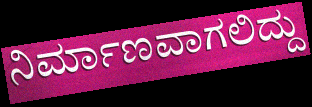
ನಿರ್ಮಾಣವಾಗಲಿದ್ದು